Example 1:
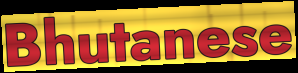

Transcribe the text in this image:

Bhutanese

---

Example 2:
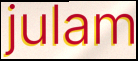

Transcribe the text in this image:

julam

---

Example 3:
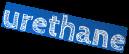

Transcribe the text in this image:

urethane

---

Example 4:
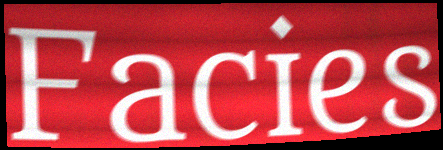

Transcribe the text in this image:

Facies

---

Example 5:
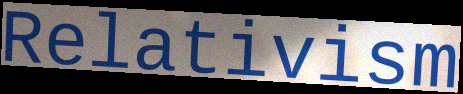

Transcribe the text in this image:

Relativism